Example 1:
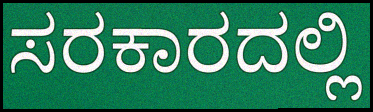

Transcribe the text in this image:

ಸರಕಾರದಲ್ಲಿ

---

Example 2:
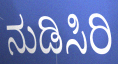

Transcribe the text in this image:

ನುಡಿಸಿರಿ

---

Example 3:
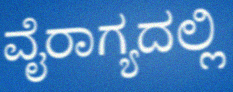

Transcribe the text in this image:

ವೈರಾಗ್ಯದಲ್ಲಿ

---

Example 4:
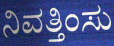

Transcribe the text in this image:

ನಿವತ್ತಿಂಸು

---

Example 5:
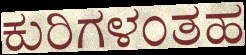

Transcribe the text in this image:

ಕುರಿಗಳಂತಹ